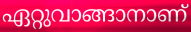
ഏറ്റുവാങ്ങാനാണ്